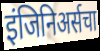
इंजिनिअर्सचा